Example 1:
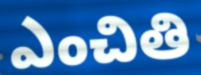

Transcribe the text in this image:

ఎంచితి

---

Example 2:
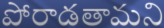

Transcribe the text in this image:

పోరాడతామని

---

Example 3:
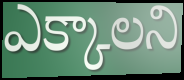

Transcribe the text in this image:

ఎక్కాలని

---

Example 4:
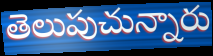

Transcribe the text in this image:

తెలుపుచున్నారు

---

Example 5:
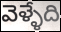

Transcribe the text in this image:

వెళ్ళేది